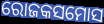
ରୋଜକସମୋସ